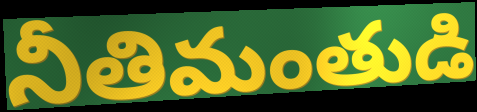
నీతిమంతుడి